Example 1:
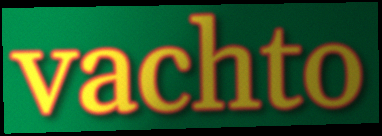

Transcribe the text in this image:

vachto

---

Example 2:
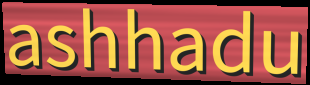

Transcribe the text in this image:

ashhadu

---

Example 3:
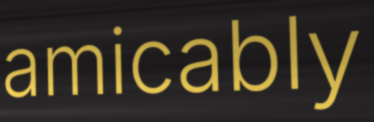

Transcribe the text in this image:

amicably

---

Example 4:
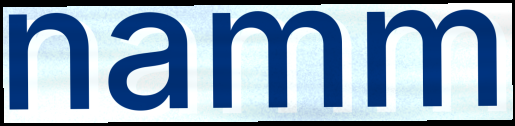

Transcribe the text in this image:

namm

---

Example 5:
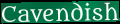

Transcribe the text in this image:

Cavendish